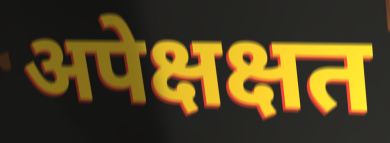
अपेक्षक्षत